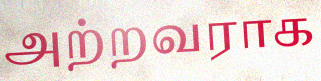
அற்றவராக